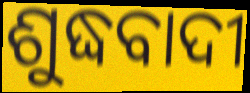
ଶୁଦ୍ଧବାଦୀ